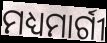
ମଧ୍ୟମାର୍ଗୀ